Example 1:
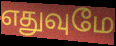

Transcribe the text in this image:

எதுவுமே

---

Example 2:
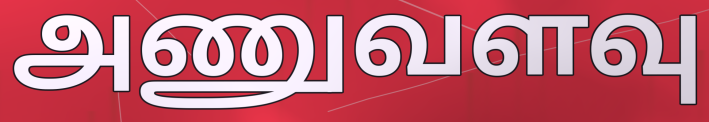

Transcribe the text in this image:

அணுவளவு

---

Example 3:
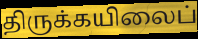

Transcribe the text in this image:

திருக்கயிலைப்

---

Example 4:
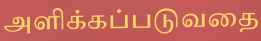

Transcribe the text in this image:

அளிக்கப்படுவதை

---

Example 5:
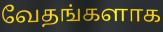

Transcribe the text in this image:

வேதங்களாக